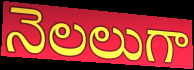
నెలలుగా